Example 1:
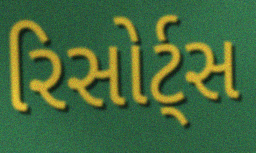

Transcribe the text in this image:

રિસોર્ટ્સ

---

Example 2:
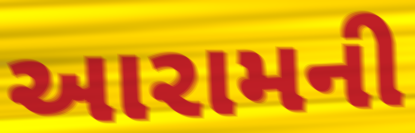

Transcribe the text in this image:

આરામની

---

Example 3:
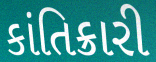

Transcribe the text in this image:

કાંતિક્રારી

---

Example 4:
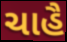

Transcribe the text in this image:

ચાહૈ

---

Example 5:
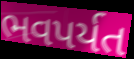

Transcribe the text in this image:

ભવપર્યત